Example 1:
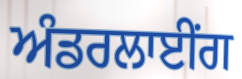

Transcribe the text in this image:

ਅੰਡਰਲਾਈੰਗ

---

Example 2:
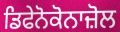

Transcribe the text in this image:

ਡਿਫੇਨੋਕੋਨਾਜ਼ੋਲ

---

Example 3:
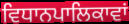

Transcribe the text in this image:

ਵਿਧਾਨਪਾਲਿਕਾਵਾਂ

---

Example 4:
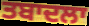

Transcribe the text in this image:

ਤਬਾਦਲਾ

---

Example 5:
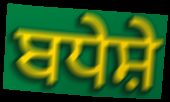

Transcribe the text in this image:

ਬਧੇਸ਼ੇ